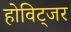
होविट्जर